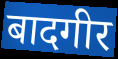
बादगीर